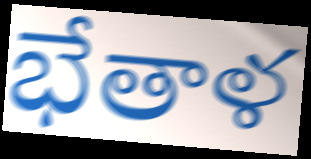
భేతాళ